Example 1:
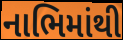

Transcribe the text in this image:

નાભિમાંથી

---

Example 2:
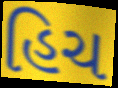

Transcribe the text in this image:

હિચ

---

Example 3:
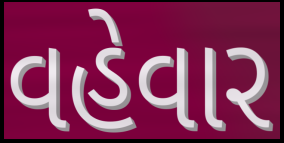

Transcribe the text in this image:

વહેવાર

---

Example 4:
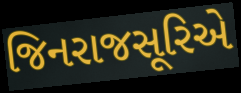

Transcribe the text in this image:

જિનરાજસૂરિએ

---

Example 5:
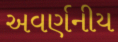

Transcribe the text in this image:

અવર્ણનીય